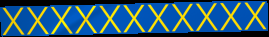
XXXXXXXXXXX